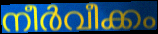
നീർവീക്കം